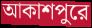
আকাশপুরে